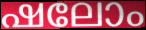
ഷലോം